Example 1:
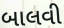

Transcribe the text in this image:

બાલવી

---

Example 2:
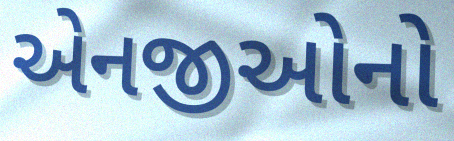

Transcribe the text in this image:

એનજીઓનો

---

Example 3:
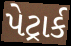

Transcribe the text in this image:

પેટ્રાર્ક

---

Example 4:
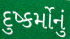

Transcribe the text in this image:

દુષ્કર્મોનું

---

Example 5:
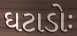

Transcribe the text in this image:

ઘટાડોઃ